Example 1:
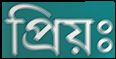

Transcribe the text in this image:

প্রিয়ঃ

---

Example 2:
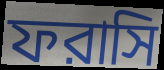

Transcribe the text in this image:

ফরাসি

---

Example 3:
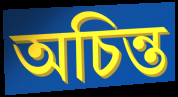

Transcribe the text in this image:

অচিন্ত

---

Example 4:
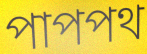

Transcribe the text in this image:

পাপপথ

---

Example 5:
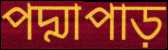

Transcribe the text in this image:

পদ্মাপাড়